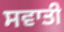
ਸਵਾਤੀ